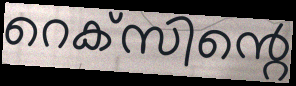
റെക്‌സിന്റെ